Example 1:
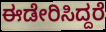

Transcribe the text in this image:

ಈಡೇರಿಸಿದ್ದರೆ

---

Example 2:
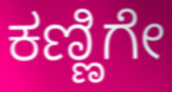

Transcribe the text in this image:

ಕಣ್ಣಿಗೇ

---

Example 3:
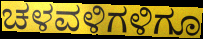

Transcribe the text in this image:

ಚಳವಳಿಗಳಿಗೂ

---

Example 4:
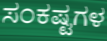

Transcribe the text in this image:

ಸಂಕಷ್ಟಗಳ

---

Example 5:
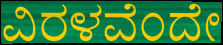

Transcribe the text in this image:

ವಿರಳವೆಂದೇ